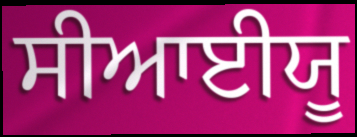
ਸੀਆਈਯੂ